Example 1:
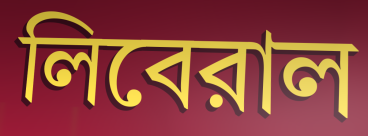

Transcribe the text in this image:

লিবেরাল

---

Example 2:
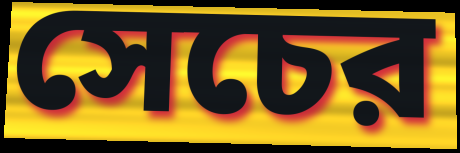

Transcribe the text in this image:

সেচের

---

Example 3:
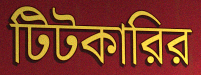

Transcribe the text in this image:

টিটকারির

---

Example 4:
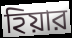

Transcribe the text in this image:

হিয়ার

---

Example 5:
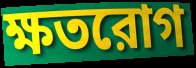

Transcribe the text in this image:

ক্ষতরোগ